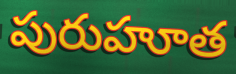
పురుహూత